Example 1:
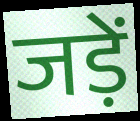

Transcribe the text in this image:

जड़ें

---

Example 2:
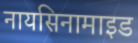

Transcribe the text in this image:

नायसिनामाइड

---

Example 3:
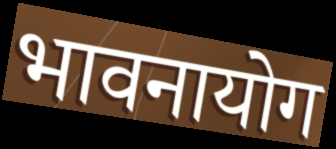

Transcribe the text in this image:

भावनायोग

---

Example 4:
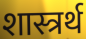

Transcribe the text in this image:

शास्त्रर्थ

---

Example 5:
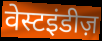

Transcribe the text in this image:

वेस्टइंडीज़